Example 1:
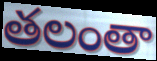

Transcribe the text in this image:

తలంతా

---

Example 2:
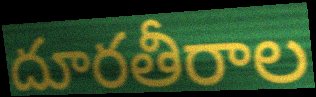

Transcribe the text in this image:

దూరతీరాల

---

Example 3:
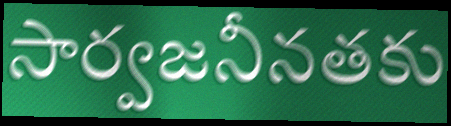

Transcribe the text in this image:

సార్వజనీనతకు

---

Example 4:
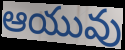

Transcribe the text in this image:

ఆయువు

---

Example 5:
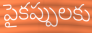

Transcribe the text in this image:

పైకప్పులకు